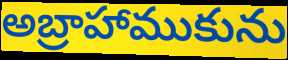
అబ్రాహాముకును